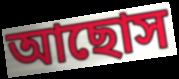
আছোস